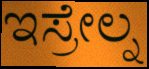
ಇಸ್ರೇಲ್ನ